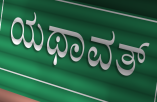
ಯಥಾವತ್